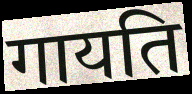
गायति